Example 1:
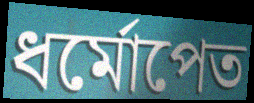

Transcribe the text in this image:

ধর্মোপেত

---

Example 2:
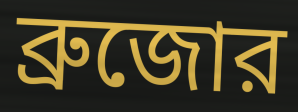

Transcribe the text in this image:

ব্রুজোর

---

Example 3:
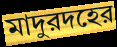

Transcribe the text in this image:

মাদুরদহের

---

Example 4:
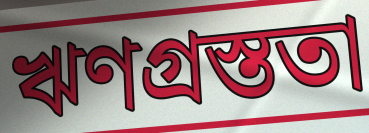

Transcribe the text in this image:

ঋণগ্রস্ততা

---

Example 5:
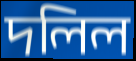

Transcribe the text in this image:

দলিল